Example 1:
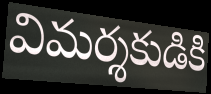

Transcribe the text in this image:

విమర్శకుడికి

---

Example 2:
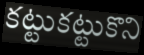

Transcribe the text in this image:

కట్టుకట్టుకొని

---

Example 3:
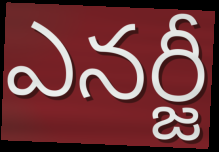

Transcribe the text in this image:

ఎనర్జీ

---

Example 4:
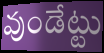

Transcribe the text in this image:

వుండేట్టు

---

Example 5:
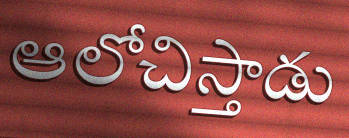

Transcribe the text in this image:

ఆలోచిస్తాడు